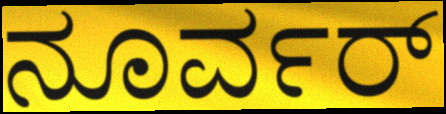
ನೂರ್ವರ್